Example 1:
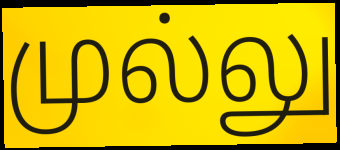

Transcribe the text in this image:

முல்லு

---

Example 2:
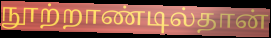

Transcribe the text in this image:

நூற்றாண்டில்தான்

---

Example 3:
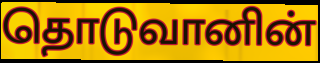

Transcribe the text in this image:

தொடுவானின்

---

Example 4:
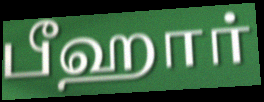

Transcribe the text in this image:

பீஹார்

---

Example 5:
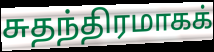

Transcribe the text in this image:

சுதந்திரமாகக்